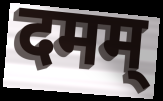
दमम्